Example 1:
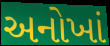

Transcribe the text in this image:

અનોખાં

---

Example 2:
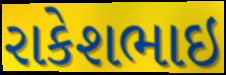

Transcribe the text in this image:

રાકેશભાઇ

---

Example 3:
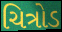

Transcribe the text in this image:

ચિત્રોડ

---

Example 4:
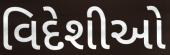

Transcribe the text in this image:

વિદેશીઓ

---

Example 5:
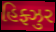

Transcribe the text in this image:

હિફ્ઝુર